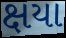
ક્ષયા